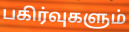
பகிர்வுகளும்